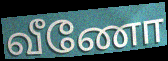
வீணோ